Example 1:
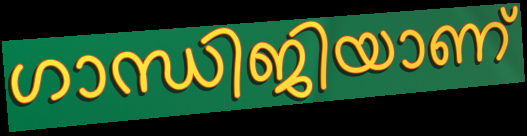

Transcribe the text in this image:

ഗാന്ധിജിയാണ്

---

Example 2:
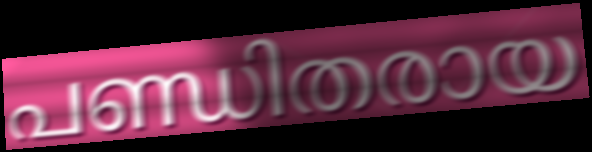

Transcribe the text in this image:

പണ്ഡിതരായ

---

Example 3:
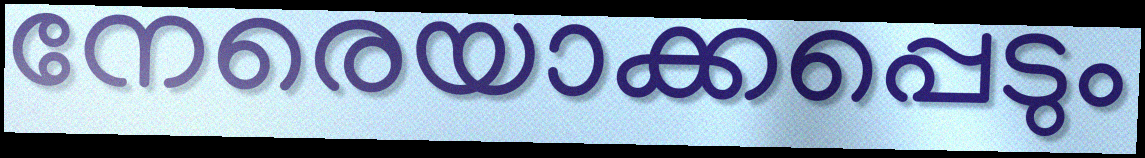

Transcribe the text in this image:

നേരെയാക്കപ്പെടും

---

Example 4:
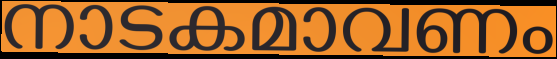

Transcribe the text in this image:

നാടകമാവണം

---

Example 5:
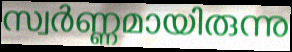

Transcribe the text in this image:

സ്വർണ്ണമായിരുന്നു